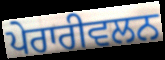
ਪੇਰਾਰੀਵਲਨ